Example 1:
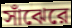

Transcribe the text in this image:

সাঁঝেরে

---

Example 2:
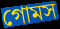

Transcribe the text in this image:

গোমস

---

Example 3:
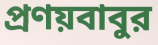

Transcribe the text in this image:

প্রণয়বাবুর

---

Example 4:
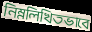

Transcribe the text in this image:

নিম্নলিখিতভাবে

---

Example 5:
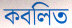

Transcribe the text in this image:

কবলিত